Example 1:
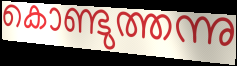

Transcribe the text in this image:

കൊണ്ടുത്തന്നു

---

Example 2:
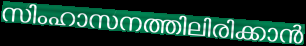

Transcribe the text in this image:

സിംഹാസനത്തിലിരിക്കാൻ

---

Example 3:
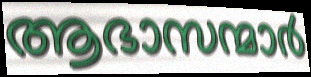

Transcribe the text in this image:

ആഭാസന്മാർ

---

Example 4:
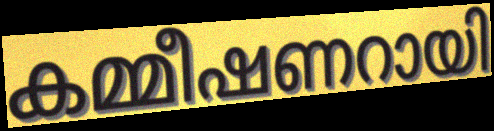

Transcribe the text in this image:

കമ്മീഷണറായി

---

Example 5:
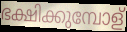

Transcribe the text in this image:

ഭക്ഷിക്കുമ്പോള്